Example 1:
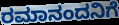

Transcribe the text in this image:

ರಮಾನಂದನಿಗೆ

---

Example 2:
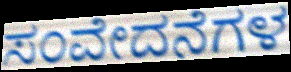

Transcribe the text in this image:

ಸಂವೇದನೆಗಳ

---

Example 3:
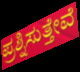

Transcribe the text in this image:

ಪ್ರಶ್ನಿಸುತ್ತೇವೆ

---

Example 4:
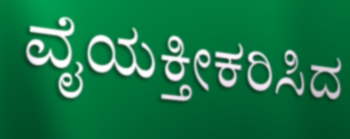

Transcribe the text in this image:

ವೈಯಕ್ತೀಕರಿಸಿದ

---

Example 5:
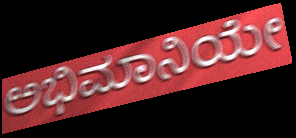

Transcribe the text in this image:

ಅಭಿಮಾನಿಯೇ